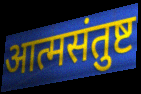
आत्मसंतुष्ट